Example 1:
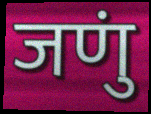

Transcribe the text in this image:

जणुं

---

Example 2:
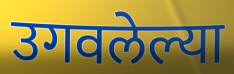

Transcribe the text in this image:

उगवलेल्या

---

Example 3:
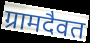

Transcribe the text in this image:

ग्रामदैवत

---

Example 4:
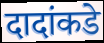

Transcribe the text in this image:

दादांकडे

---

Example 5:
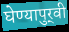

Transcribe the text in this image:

घेण्यापुर्वी